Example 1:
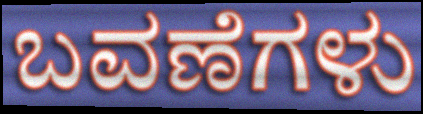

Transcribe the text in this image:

ಬವಣೆಗಳು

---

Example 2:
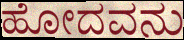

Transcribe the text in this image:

ಹೋದವನು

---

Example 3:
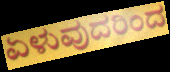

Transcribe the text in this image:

ಏಳುವುದರಿಂದ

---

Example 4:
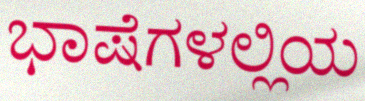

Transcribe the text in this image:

ಭಾಷೆಗಳಲ್ಲಿಯ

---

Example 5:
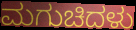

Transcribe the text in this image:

ಮಗುಚಿದಳು